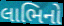
લાભિનો